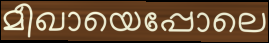
മീഖായെപ്പോലെ